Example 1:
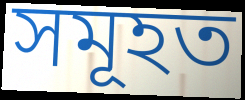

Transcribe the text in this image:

সমূহত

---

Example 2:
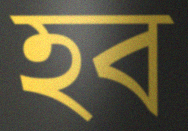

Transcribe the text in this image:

হব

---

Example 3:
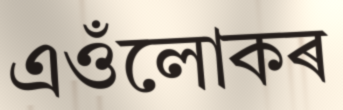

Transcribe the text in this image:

এওঁলোকৰ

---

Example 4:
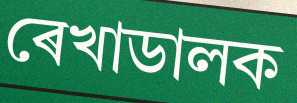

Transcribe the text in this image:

ৰেখাডালক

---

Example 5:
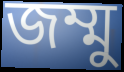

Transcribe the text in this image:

জম্মু